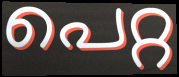
പെറ്റ